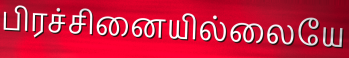
பிரச்சினையில்லையே